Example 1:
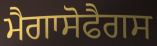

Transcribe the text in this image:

ਮੈਗਾਸੋਫੈਗਸ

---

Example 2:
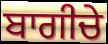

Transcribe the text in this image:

ਬਾਗੀਚੇ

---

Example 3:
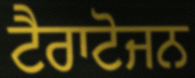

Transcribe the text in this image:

ਟੈਰਾਟੋਜਨ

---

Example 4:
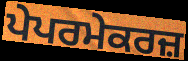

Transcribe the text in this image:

ਪੇਪਰਮੇਕਰਜ਼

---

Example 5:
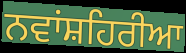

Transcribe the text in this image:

ਨਵਾਂਸ਼ਹਿਰੀਆ